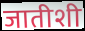
जातीशी